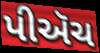
પીઍચ